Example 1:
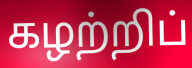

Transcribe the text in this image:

கழற்றிப்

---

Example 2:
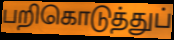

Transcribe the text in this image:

பறிகொடுத்துப்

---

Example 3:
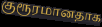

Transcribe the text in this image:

குரூரமானதாக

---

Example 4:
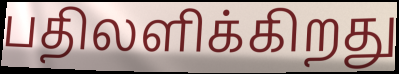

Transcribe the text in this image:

பதிலளிக்கிறது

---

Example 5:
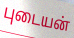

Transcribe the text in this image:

புடையன்